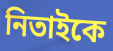
নিতাইকে